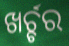
ଖର୍ଚ୍ଚର